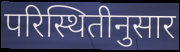
परिस्थितीनुसार